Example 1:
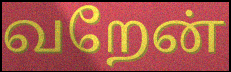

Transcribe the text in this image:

வறேன்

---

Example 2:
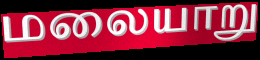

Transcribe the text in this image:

மலையாறு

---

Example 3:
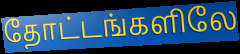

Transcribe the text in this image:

தோட்டங்களிலே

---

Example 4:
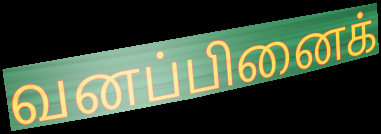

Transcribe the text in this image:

வனப்பினைக்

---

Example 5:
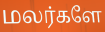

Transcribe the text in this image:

மலர்களே